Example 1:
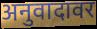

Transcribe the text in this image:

अनुवादावर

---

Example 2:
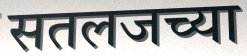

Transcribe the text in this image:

सतलजच्या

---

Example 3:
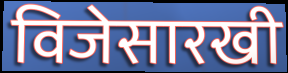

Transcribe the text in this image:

विजेसारखी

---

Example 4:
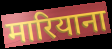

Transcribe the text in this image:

मारियाना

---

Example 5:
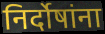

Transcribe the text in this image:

निर्दोषांना